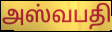
அஸ்வபதி